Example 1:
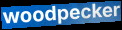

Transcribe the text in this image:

woodpecker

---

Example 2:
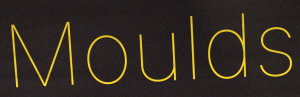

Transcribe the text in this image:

Moulds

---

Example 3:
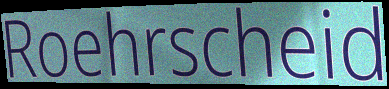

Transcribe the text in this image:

Roehrscheid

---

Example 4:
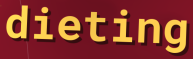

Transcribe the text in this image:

dieting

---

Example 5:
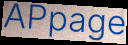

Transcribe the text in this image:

APpage